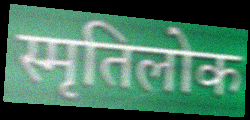
स्मृतिलोक